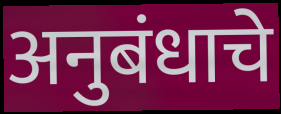
अनुबंधाचे